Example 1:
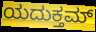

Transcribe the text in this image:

ಯದುಕ್ತಮ್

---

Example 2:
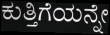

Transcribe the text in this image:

ಕುತ್ತಿಗೆಯನ್ನೇ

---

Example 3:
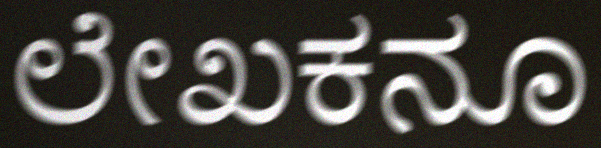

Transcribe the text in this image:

ಲೇಖಕನೂ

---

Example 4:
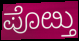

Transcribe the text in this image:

ಪೊೞ್ತು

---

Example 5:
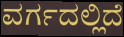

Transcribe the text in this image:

ವರ್ಗದಲ್ಲಿದೆ